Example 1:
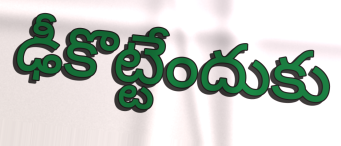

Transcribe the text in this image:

ఢీకొట్టేందుకు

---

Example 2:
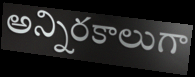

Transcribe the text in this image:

అన్నిరకాలుగా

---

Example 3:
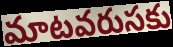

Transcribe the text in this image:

మాటవరుసకు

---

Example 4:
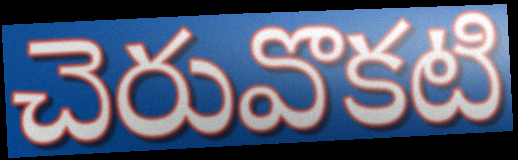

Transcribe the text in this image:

చెరువొకటి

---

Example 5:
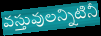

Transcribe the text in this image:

వస్తువులన్నిటినీ